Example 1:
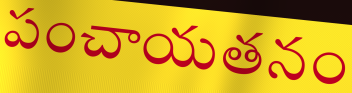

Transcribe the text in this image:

పంచాయతనం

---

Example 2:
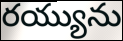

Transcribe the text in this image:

రయ్యును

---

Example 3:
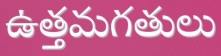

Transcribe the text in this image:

ఉత్తమగతులు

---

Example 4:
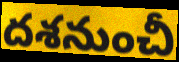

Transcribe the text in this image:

దశనుంచీ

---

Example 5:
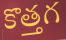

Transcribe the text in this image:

కొత్తగ